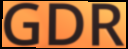
GDR